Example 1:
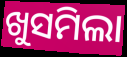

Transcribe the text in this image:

ଖୁସମିଲା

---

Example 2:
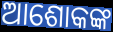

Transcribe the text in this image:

ଆଶୋକଙ୍କ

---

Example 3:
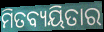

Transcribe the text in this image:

ମିତବ୍ୟୟିତାର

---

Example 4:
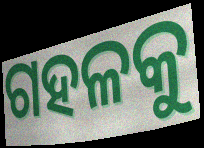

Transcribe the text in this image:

ଗହଳକୁ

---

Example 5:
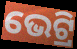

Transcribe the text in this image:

ଭେଟ୍ରି